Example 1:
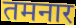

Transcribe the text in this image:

तमनार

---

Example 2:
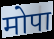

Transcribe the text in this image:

मोपा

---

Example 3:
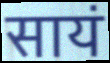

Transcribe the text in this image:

सायं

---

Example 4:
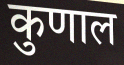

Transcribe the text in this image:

कुणाल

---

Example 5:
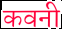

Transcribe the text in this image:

कवनी